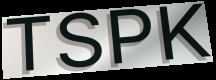
TSPK